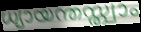
ധ്യായന്തസ്ത്വാം